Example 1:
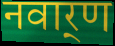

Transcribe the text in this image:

नवार्ण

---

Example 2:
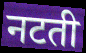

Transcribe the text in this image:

नटती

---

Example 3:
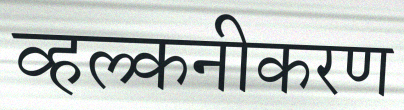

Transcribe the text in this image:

व्हल्कनीकरण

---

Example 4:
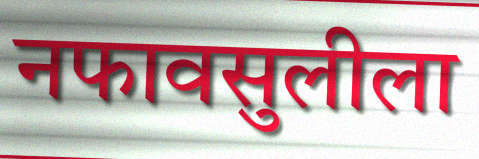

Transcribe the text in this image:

नफावसुलीला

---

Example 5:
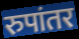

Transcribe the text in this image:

रुपांतर